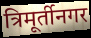
त्रिमूर्तीनगर